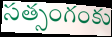
సత్సంగంకు